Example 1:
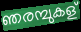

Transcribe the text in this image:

ഞരമ്പുകള്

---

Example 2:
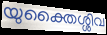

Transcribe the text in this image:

യുക്തൈശ്ശിവ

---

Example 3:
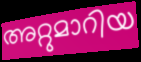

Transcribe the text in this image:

അറ്റുമാറിയ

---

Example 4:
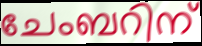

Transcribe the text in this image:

ചേംബറിന്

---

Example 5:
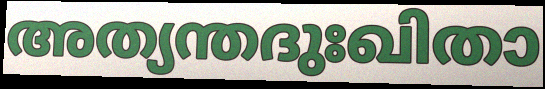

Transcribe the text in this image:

അത്യന്തദുഃഖിതാ